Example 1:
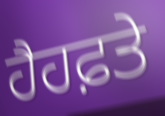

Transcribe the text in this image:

ਹੈਹਫ਼ਤੇ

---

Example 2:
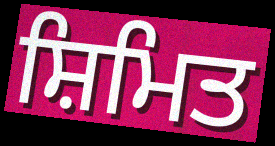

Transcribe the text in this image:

ਸ਼ਿਮਿਤ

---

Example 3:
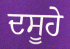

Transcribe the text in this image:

ਦਸੂਹੇ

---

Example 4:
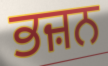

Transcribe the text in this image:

ਭਜ਼ਨ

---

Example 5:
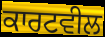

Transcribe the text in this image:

ਕਾਰਟਵੀਲ